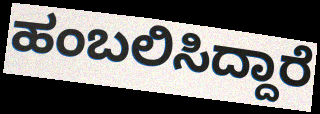
ಹಂಬಲಿಸಿದ್ದಾರೆ